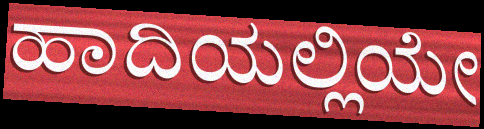
ಹಾದಿಯಲ್ಲಿಯೇ